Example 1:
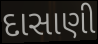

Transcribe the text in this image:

દાસાણી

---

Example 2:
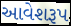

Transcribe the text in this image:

આવેશરૂપ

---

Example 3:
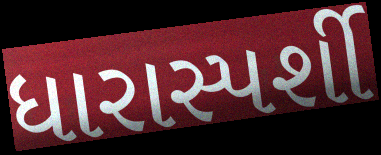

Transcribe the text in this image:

ધારાસ્પર્શી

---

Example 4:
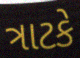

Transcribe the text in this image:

ત્રાટકે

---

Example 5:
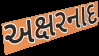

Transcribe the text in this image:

અક્ષરનાદ